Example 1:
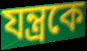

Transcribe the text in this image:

যন্ত্রকে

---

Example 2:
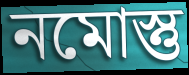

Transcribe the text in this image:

নমোস্তু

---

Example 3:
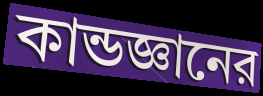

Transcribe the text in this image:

কান্ডজ্ঞানের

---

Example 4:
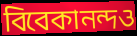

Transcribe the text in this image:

বিবেকানন্দও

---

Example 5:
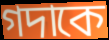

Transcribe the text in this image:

গদাকে